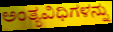
ಅಂತ್ಯವಿಧಿಗಳನ್ನು